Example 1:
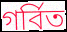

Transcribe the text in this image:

গর্বিত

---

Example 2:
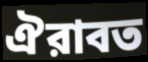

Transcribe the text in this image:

ঐরাবত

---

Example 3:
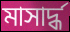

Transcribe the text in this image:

মাসার্দ্ধ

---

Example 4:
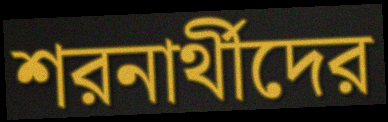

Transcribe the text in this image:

শরনার্থীদের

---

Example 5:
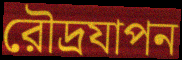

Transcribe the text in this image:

রৌদ্রযাপন